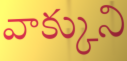
వాక్కుని